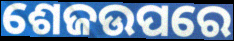
ଶେଜଉପରେ